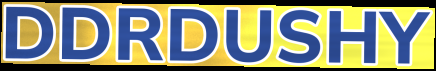
DDRDUSHY